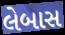
લેબાસ